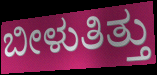
ಬೀಳುತಿತ್ತು